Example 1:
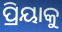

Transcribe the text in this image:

ପ୍ରିୟାକୁ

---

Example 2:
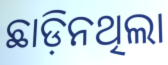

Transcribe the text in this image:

ଛାଡ଼ିନଥିଲା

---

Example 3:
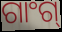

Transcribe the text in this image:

ଗାଂଗ୍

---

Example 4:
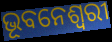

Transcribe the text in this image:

ଭୂବନେଶ୍ୱରୀ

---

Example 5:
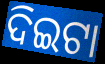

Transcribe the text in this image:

ଦିଇଟା